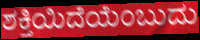
ಶಕ್ತಿಯಿದೆಯೆಂಬುದು